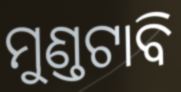
ମୁଣ୍ଡଟାବି